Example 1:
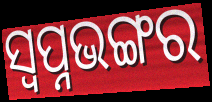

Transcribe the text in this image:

ସ୍ୱପ୍ନଭଙ୍ଗର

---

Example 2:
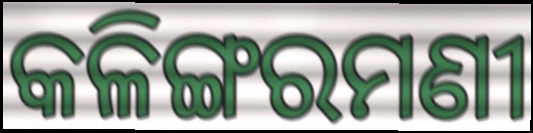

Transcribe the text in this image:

କଳିଙ୍ଗରମଣୀ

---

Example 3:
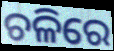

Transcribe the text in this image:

ଚଳିରେ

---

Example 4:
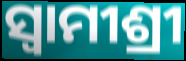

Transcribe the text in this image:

ସ୍ଵାମୀଶ୍ରୀ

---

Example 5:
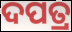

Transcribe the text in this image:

ଦପତ୍ର